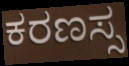
ಕರಣಸ್ಸ